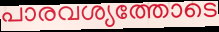
പാരവശ്യത്തോടെ